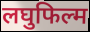
लघुफिल्म